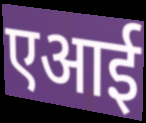
एआई